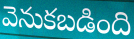
వెనుకబడింది